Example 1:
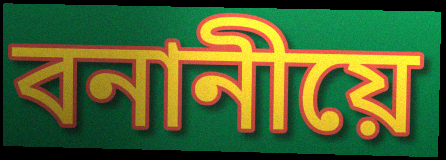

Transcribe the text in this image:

বনানীয়ে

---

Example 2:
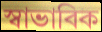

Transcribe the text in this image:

স্বাভাবিক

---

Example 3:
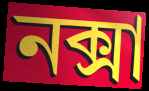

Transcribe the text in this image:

নক্সা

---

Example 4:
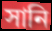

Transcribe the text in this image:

সানি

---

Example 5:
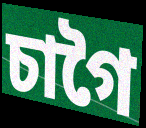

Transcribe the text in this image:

চাগৈ